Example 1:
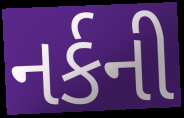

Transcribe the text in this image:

નર્કની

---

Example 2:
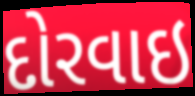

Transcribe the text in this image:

દોરવાઇ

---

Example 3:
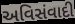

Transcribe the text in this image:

અવિસંવાદી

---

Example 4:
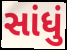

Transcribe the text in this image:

સાંધું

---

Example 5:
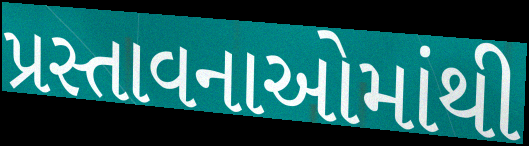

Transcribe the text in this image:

પ્રસ્તાવનાઓમાંથી